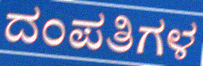
ದಂಪತಿಗಳ